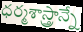
ధర్మశాస్త్రాన్నే